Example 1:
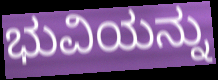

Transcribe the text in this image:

ಭುವಿಯನ್ನು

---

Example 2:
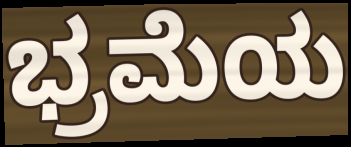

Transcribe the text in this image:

ಭ್ರಮೆಯ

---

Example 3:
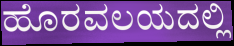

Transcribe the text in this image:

ಹೊರವಲಯದಲ್ಲಿ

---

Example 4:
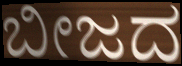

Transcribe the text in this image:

ಬೀಜದ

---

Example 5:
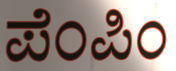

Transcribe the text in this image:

ಪೆಂಪಿಂ